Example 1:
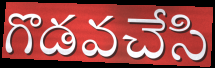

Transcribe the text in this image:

గొడవచేసి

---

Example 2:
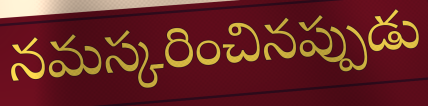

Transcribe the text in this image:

నమస్కరించినప్పుడు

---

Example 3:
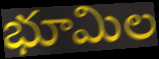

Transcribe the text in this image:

భూమిల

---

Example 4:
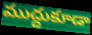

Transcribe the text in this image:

ముద్దుకూడా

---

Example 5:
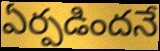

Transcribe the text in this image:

ఏర్పడిందనే